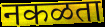
नकळता